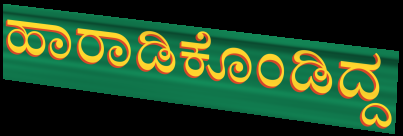
ಹಾರಾಡಿಕೊಂಡಿದ್ದ